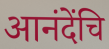
आनंदेंचि